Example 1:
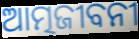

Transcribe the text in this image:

ଆତ୍ମଜୀବନୀ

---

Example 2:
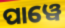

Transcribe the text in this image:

ପାୱେ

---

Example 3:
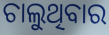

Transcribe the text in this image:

ଚାଲୁଥିବାର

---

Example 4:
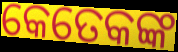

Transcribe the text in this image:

କେତେକଙ୍କ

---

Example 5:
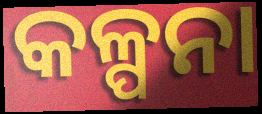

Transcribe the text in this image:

କଳ୍ପନା